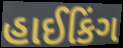
હાઈકિંગ